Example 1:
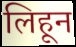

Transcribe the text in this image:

लिहून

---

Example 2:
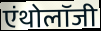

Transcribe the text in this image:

एंथोलॉजी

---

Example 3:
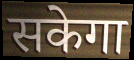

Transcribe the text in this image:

सकेगा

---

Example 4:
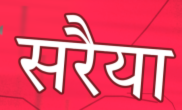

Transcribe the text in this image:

सरैया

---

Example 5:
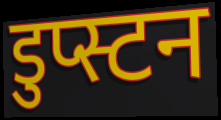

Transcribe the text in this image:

डुप्स्टन